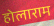
होलाराम